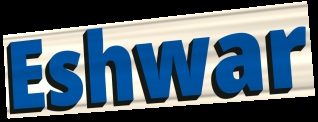
Eshwar